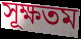
সূক্ষতম